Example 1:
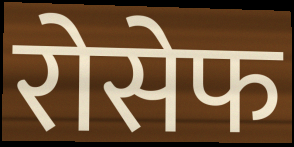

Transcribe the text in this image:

रोसेफ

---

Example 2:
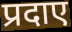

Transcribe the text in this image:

प्रदाए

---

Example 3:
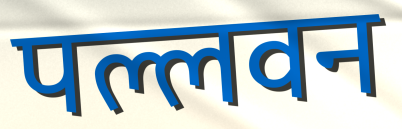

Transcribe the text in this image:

पल्लवन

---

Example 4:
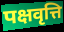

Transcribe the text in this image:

पक्षवृत्ति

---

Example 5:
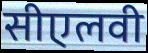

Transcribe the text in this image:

सीएलवी